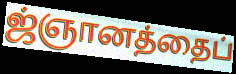
ஜ்ஞானத்தைப்